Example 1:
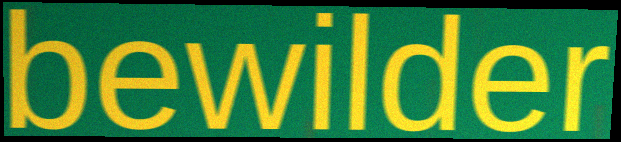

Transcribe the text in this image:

bewilder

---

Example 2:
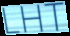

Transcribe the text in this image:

LHT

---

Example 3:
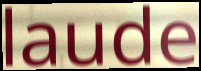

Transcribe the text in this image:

laude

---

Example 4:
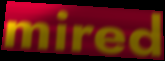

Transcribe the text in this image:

mired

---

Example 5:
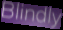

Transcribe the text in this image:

Blindly